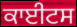
ਕਾਈਟਸ